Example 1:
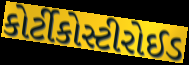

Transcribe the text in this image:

કોર્ટીકોસ્ટીરોઈડ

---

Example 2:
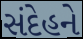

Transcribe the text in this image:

સંદેહને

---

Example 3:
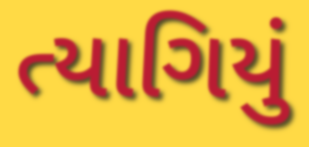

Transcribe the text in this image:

ત્યાગિયું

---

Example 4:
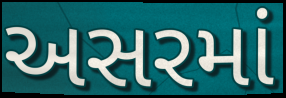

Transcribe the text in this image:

અસરમાં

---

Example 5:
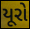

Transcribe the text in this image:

યૂરો